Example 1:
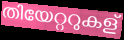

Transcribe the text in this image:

തിയേറ്ററുകള്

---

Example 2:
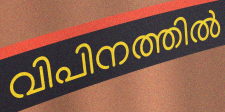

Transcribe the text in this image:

വിപിനത്തിൽ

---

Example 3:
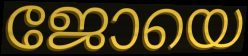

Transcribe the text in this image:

ജോയെ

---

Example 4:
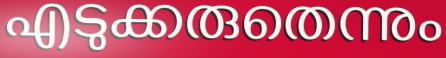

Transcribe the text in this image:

എടുക്കരുതെന്നും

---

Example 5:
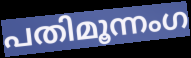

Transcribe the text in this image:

പതിമൂന്നംഗ